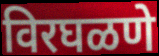
विरघळणे